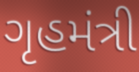
ગૃહમંત્રી